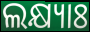
ଲକ୍ଷ୍ୟାଃ